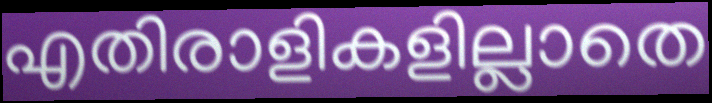
എതിരാളികളില്ലാതെ